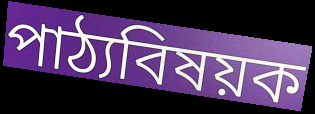
পাঠ্যবিষয়ক